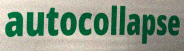
autocollapse